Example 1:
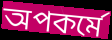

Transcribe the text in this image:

অপকর্মে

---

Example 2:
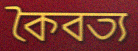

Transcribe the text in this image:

কৈবত্য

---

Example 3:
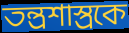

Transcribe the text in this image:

তন্ত্রশাস্ত্রকে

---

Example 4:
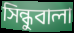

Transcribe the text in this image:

সিন্ধুবালা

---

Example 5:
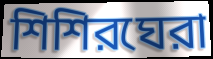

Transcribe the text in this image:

শিশিরঘেরা